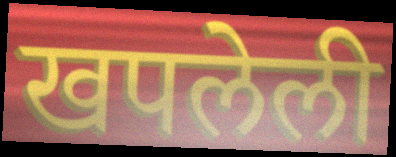
खपलेली